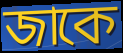
জাকে